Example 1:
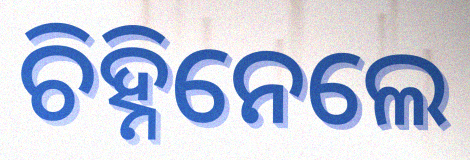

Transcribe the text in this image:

ଚିହ୍ନିନେଲେ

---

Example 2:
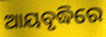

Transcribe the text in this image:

ଆୟବୃଦ୍ଧିରେ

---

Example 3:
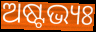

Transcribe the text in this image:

ଅଷ୍ଟଭ୍ୟଃ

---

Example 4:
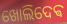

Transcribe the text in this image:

ଖୋଲିଦେଵ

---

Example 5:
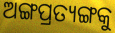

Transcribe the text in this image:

ଅଙ୍ଗପ୍ରତ୍ୟଙ୍ଗକୁ